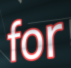
for